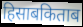
हिसाबकिताब